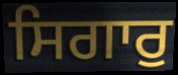
ਸਿਗਾਰੁ